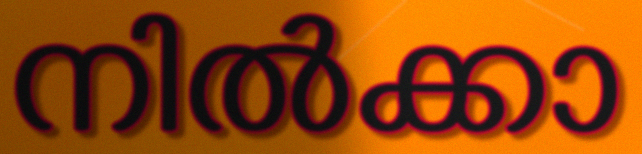
നിൽക്കാ